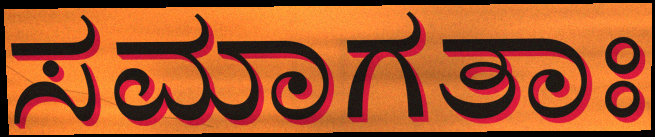
ಸಮಾಗತಾಃ